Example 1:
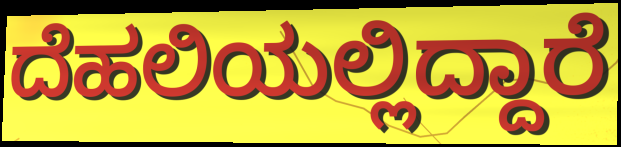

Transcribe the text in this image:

ದೆಹಲಿಯಲ್ಲಿದ್ದಾರೆ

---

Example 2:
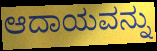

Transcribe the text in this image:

ಆದಾಯವನ್ನು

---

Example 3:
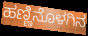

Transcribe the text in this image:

ಹಣ್ಣಿನೊಳಗಿನ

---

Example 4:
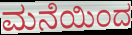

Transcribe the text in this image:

ಮನೆಯಿಂದ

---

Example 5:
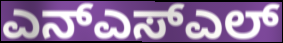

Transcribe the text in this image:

ಎನ್ಎಸ್ಎಲ್